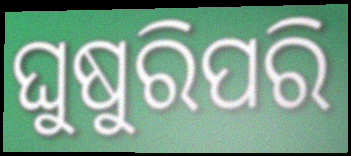
ଘୁଷୁରିପରି